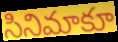
సినిమాకూ